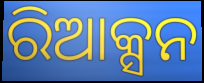
ରିଆକ୍ସନ